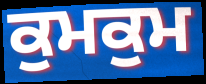
ਕੁਮਕੁਮ